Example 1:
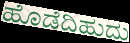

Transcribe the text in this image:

ಹೊಡೆದಿಹುದು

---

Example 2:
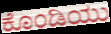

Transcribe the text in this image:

ಕೊಂಡಿಯು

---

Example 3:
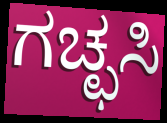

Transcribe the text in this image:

ಗಚ್ಛಸಿ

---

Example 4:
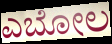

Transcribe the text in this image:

ಎಬೋಲ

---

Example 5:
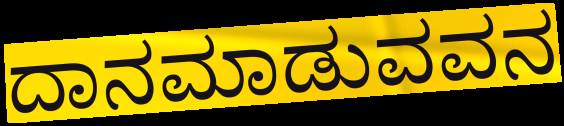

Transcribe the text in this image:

ದಾನಮಾಡುವವನ